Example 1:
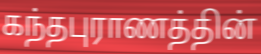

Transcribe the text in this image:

கந்தபுராணத்தின்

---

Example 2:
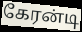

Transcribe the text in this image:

கேரன்டி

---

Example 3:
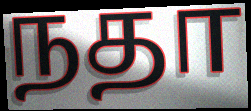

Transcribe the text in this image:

நதா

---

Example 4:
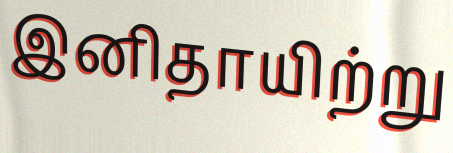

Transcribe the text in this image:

இனிதாயிற்று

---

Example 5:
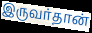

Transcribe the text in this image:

இருவர்தான்